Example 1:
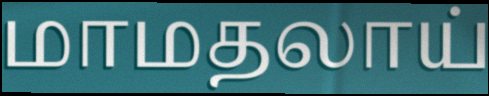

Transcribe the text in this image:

மாமதலாய்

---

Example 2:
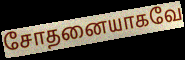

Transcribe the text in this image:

சோதனையாகவே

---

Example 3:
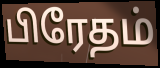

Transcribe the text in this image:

பிரேதம்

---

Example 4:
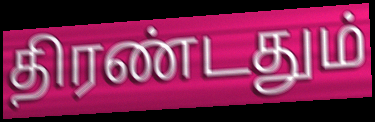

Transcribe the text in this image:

திரண்டதும்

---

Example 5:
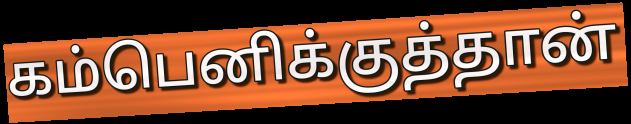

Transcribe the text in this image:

கம்பெனிக்குத்தான்